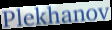
Plekhanov